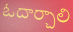
ఓదార్చాలి